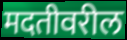
मदतीवरील